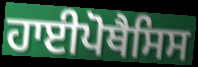
ਹਾਈਪੋਥੈਸਿਸ